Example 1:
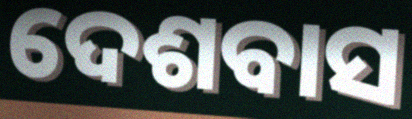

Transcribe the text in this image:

ଦେଶବାସ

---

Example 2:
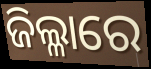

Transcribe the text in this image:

ଜିଲ୍ଳାରେ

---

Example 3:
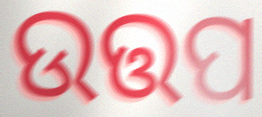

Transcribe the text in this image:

ଉତ୍ତପ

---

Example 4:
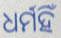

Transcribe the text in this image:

ଧର୍ମହିଁ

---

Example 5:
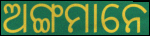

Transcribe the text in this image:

ଅଙ୍ଗମାନେ